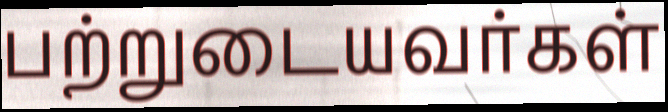
பற்றுடையவர்கள்